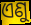
ଏଣୁ